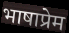
भाषाप्रेम